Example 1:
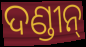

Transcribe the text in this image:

ଦଣ୍ଡୀନ୍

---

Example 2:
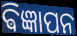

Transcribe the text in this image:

ଵିଜ୍ଞାପନ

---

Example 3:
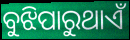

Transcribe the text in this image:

ବୁଝିପାରୁଥାଏଁ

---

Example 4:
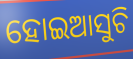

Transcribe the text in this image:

ହୋଇଆସୁଚି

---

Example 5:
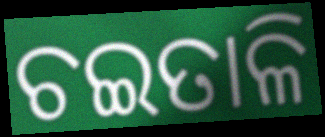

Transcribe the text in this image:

ଚଇତାଳି